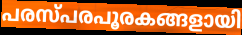
പരസ്പരപൂരകങ്ങളായി